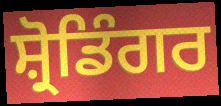
ਸ਼੍ਰੋਡਿੰਗਰ